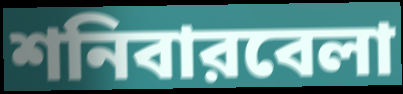
শনিবারবেলা